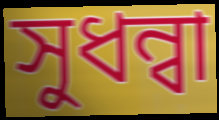
সুধন্বা